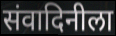
संवादिनीला